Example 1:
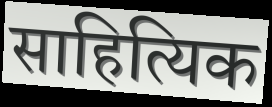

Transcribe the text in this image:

साहित्यिक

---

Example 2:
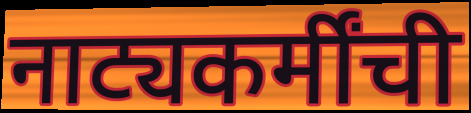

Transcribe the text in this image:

नाट्यकर्मींची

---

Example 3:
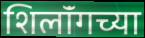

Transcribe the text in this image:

शिलॉंगच्या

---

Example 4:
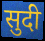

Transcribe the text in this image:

सुदी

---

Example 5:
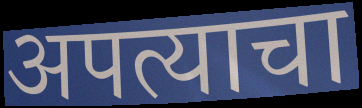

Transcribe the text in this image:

अपत्याचा